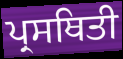
ਪ੍ਰਸਥਿਤੀ